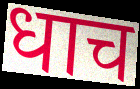
धाच